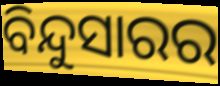
ବିନ୍ଦୁସାରର